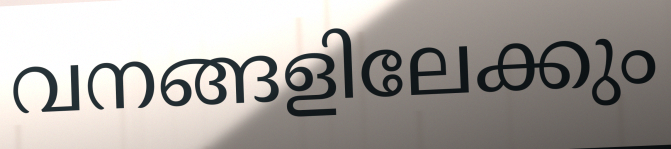
വനങ്ങളിലേക്കും